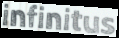
infinitus